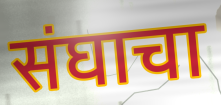
संघाचा